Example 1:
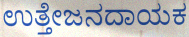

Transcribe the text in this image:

ಉತ್ತೇಜನದಾಯಕ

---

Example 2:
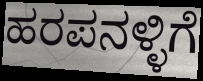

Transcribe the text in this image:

ಹರಪನಳ್ಳಿಗೆ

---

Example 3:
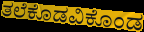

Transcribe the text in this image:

ತಲೆಕೊಡವಿಕೊಂಡ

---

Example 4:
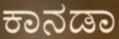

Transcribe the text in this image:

ಕಾನಡಾ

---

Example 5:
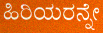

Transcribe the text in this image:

ಹಿರಿಯರನ್ನೇ